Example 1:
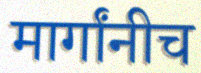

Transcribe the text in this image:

मार्गांनीच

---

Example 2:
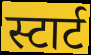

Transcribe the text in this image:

स्टार्ट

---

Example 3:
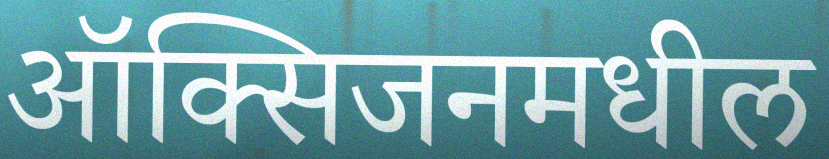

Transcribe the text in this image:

ऑक्सिजनमधील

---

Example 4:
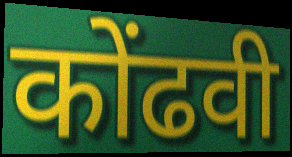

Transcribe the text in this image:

कोंढवी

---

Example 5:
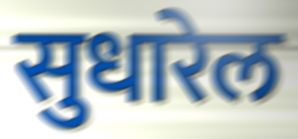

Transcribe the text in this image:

सुधारेल